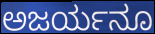
ಅಜರ್ಯನೂ